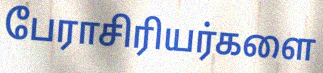
பேராசிரியர்களை